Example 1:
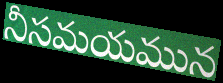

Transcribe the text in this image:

నీసమయమున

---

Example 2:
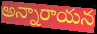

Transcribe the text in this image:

అన్నారాయన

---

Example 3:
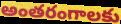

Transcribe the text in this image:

అంతరంగాలకు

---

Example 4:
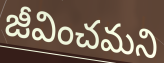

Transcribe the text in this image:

జీవించమని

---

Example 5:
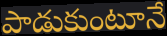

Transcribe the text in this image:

పాడుకుంటూనే